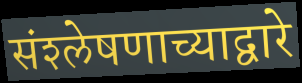
संश्लेषणाच्याद्वारे